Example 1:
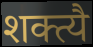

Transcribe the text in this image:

शक्त्यै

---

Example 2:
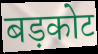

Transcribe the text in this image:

बड़कोट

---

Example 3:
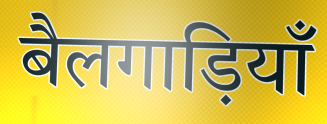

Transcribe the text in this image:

बैलगाड़ियाँ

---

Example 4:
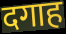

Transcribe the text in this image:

दगाह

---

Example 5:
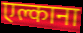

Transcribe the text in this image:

एल्काना